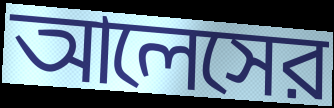
আলেসের